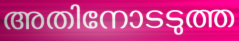
അതിനോടടുത്ത